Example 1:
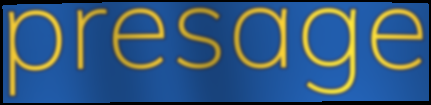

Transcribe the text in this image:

presage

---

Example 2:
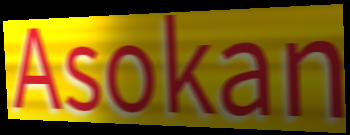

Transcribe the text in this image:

Asokan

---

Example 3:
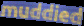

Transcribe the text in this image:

muddied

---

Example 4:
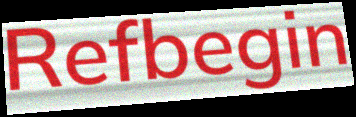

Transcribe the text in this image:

Refbegin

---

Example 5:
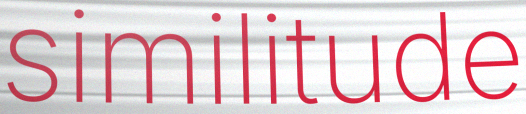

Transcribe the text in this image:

similitude